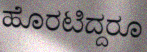
ಹೊರಟಿದ್ದರೂ